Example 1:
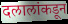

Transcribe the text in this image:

दलालांकडून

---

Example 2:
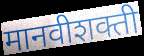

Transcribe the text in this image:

मानवीशक्ती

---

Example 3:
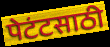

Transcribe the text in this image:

पेटंटसाठी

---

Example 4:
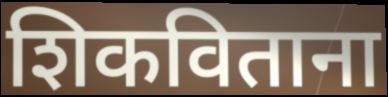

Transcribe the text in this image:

शिकविताना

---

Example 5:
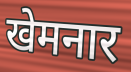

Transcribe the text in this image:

खेमनार